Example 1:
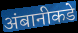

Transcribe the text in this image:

अंबानीकडे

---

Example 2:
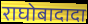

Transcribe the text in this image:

राघोबादादा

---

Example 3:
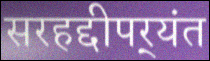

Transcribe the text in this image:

सरहद्दीपर्यंत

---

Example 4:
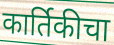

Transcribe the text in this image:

कार्तिकीचा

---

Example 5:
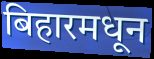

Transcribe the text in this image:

बिहारमधून